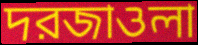
দরজাওলা